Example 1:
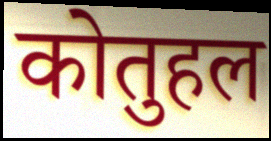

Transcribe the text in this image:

कोतुहल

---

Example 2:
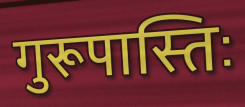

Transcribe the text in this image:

गुरूपास्तिः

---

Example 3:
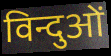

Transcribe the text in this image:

विन्दुओं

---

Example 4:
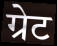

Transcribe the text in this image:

ग्रेट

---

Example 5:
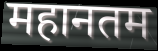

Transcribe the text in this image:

महानतम